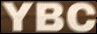
YBC